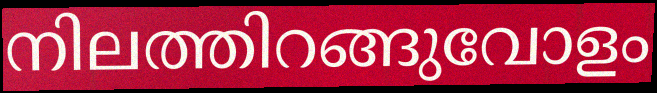
നിലത്തിറങ്ങുവോളം